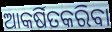
ଆକର୍ଷିତକରିବା